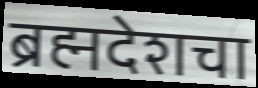
ब्रह्मदेशचा